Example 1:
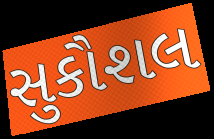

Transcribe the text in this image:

સુકૌશલ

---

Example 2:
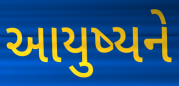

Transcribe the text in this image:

આયુષ્યને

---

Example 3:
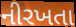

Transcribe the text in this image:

નીરખતા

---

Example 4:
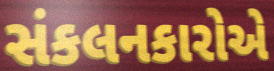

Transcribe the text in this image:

સંકલનકારોએ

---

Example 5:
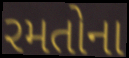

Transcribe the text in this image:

રમતોના